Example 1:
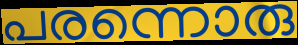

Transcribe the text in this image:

പരന്നൊരു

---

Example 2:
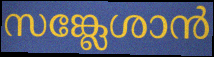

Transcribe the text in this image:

സങ്ക്ലേശാൻ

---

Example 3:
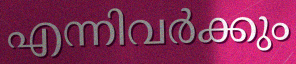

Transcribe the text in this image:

എന്നിവർക്കും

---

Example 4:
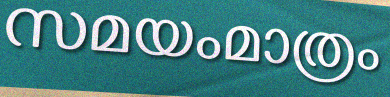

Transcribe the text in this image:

സമയംമാത്രം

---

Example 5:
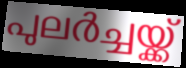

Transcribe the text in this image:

പുലർച്ചയ്ക്ക്